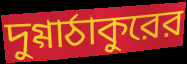
দুগ্গাঠাকুরের